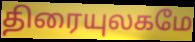
திரையுலகமே